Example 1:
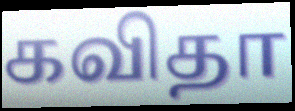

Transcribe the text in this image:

கவிதா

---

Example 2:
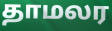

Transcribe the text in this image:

தாமலர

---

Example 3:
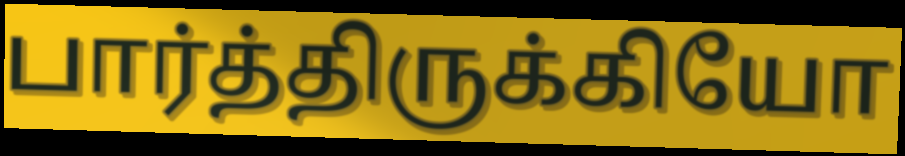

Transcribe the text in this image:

பார்த்திருக்கியோ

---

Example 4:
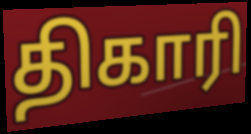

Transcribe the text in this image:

திகாரி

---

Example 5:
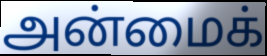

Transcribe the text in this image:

அன்மைக்